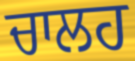
ਚਾਲਹ